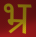
भ्र